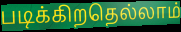
படிக்கிறதெல்லாம்